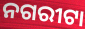
ନଗରୀଟା